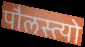
पौलस्त्यो